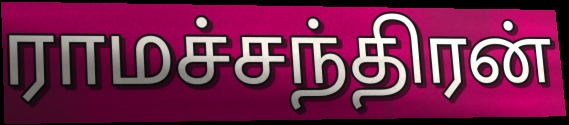
ராமச்சந்திரன்